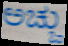
ಅಚ್ಚು